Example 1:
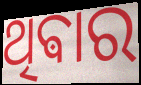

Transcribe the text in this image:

ଥିଵାର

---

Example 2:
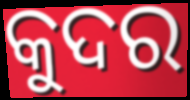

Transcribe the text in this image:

କୁଦର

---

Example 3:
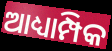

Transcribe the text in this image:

ଆଧ୍ୟାମ୍ପିକ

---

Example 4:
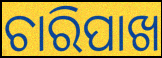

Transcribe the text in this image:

ଚାରିପାଖ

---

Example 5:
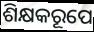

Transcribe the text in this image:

ଶିକ୍ଷକରୂପେ